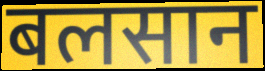
बलसान